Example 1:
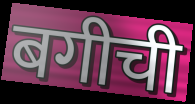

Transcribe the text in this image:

बगीची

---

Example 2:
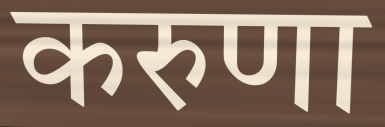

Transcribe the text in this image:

करुणा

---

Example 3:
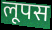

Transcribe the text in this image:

लूपस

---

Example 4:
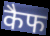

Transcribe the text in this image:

कैफ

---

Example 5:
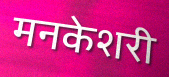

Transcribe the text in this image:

मनकेशरी